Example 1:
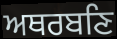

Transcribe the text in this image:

ਅਥਰਬਣਿ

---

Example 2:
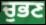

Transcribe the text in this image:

ਚੁਭਣ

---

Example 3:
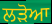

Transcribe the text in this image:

ਲੜੋਆ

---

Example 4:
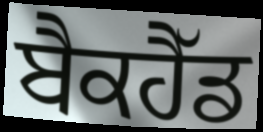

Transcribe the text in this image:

ਬੈਕਹੈੱਡ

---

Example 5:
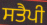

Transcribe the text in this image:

ਸਤੈਪੀ